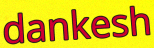
dankesh